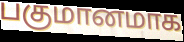
பகுமானமாக